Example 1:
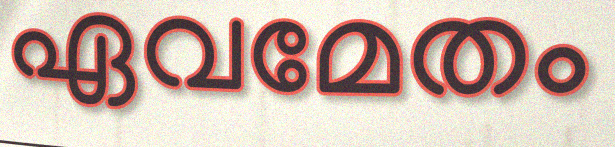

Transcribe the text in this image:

ഏവമേതം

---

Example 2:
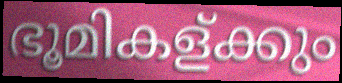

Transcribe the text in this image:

ഭൂമികള്ക്കും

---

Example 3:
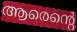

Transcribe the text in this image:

ആരെന്റെ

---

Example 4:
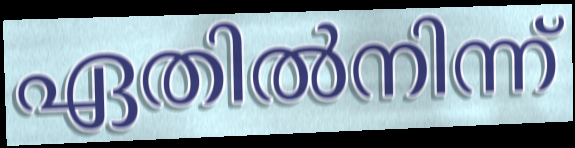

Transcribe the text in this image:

ഏതിൽനിന്ന്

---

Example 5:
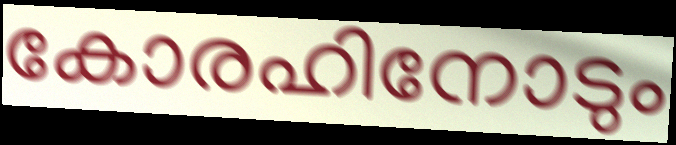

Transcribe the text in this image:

കോരഹിനോടും